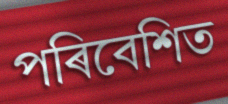
পৰিবেশিত